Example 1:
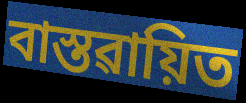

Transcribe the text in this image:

বাস্তৱায়িত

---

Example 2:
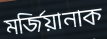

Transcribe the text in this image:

মৰ্জিয়ানাক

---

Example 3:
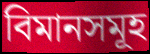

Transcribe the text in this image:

বিমানসমূহ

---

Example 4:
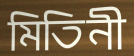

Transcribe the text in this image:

মিতিনী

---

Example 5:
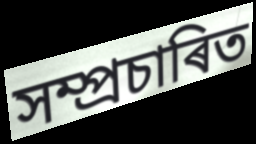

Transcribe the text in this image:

সম্প্ৰচাৰিত